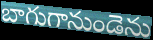
బాగుగానుండెను